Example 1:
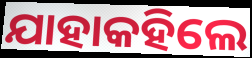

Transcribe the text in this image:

ଯାହାକହିଲେ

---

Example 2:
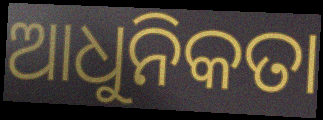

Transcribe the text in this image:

ଆଧୁନିକତା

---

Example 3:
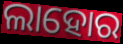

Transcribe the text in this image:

ଲାହୋର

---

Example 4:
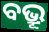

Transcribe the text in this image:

ବଭ୍ରୂ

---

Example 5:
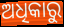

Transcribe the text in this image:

ଅଧିକାରୁ